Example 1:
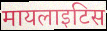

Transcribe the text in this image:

मायलाइटिस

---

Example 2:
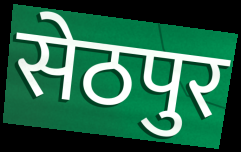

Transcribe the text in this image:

सेठपुर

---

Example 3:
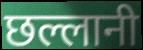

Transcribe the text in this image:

छल्लानी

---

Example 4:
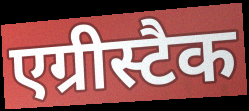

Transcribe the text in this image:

एग्रीस्टैक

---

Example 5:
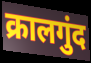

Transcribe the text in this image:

क्रालगुंद